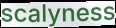
scalyness